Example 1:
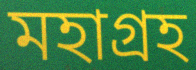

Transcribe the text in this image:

মহাগ্রহ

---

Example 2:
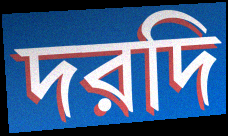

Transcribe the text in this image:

দরদি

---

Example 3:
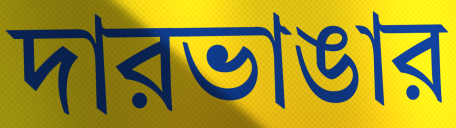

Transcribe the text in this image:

দারভাঙার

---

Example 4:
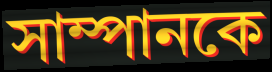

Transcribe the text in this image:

সাম্পানকে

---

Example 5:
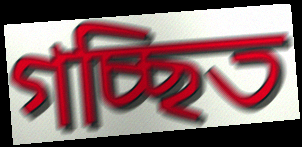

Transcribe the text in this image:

গচ্ছিত